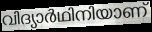
വിദ്യാർഥിനിയാണ്